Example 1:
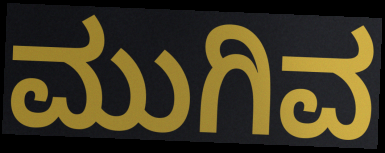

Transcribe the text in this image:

ಮುಗಿವ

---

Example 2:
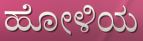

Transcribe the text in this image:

ಹೋಳಿಯ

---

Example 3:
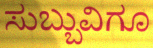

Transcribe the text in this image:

ಸುಬ್ಬುವಿಗೂ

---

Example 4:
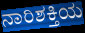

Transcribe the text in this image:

ನಾರಿಶಕ್ತಿಯ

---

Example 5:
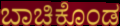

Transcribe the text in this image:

ಬಾಚಿಕೊಂಡ